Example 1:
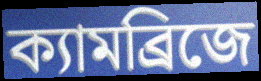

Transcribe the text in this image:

ক্যামব্রিজে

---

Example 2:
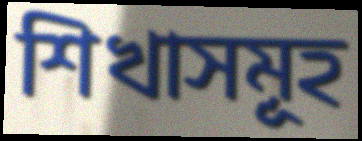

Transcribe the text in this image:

শিখাসমূহ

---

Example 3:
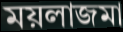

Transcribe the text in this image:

ময়লাজমা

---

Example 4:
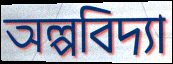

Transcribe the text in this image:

অল্পবিদ্যা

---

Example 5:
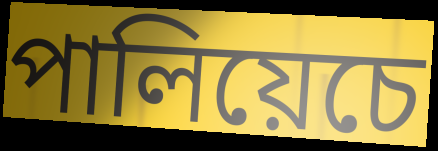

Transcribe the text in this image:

পালিয়েচে